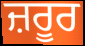
ਜ਼ਰੂਰ